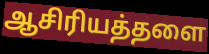
ஆசிரியத்தளை